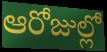
ఆరోజుల్లో